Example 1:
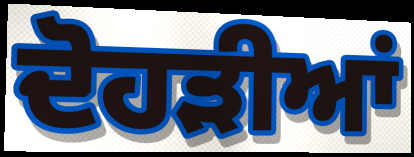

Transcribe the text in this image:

ਦੋਹੜੀਆਂ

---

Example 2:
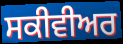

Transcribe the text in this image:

ਸਕੀਵੀਅਰ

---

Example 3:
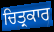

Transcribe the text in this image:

ਚਿਤ੍ਰਕਾਰ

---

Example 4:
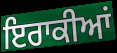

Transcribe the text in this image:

ਇਰਾਕੀਆਂ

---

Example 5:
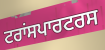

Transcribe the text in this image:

ਟਰਾਂਸਪਾਰਟਰਸ